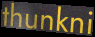
thunkni